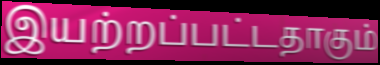
இயற்றப்பட்டதாகும்